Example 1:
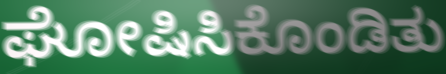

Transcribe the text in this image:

ಘೋಷಿಸಿಕೊಂಡಿತು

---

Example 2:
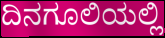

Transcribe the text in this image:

ದಿನಗೂಲಿಯಲ್ಲಿ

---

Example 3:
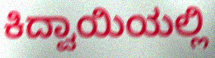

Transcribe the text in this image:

ಕಿದ್ವಾಯಿಯಲ್ಲಿ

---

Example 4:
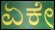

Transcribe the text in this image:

ಏಕೇ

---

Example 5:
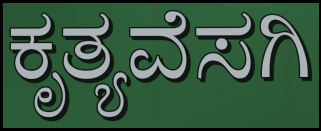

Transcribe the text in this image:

ಕೃತ್ಯವೆಸಗಿ